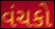
વંચકો